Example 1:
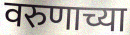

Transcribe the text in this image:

वरुणाच्या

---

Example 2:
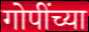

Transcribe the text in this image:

गोपींच्या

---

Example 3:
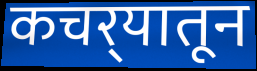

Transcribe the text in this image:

कचर्‍यातून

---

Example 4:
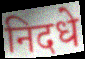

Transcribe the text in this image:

निदधे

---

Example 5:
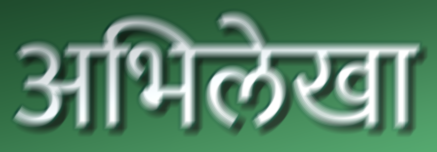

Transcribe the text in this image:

अभिलेखा